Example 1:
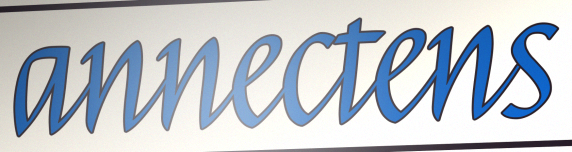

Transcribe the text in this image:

annectens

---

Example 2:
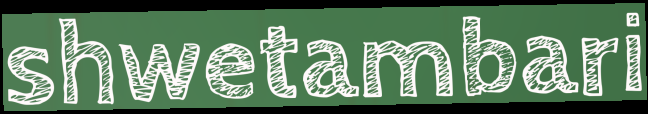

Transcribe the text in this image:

shwetambari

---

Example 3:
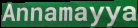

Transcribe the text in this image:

Annamayya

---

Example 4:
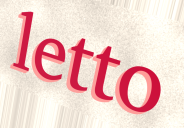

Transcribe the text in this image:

letto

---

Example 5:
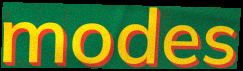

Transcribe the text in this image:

modes